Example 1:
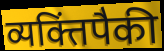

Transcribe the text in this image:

व्यक्तिंपैकी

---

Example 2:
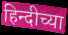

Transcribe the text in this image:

हिन्दीच्या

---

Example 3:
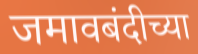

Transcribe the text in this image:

जमावबंदीच्या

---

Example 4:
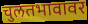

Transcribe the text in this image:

चुलतभावावर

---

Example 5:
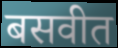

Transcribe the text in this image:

बसवीत